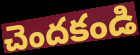
చెందకండి